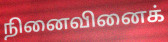
நினைவினைக்